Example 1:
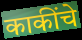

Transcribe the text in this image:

काकींचे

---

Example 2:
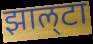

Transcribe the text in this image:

झाल्टा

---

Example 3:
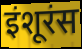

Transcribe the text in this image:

इंशूरंस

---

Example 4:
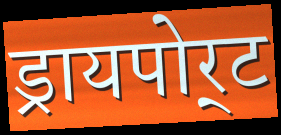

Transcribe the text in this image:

ड्रायपोर्ट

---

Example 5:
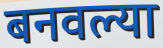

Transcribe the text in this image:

बनवल्या